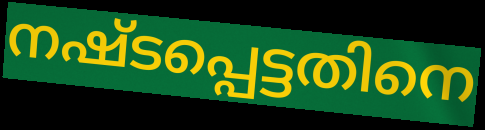
നഷ്ടപ്പെട്ടതിനെ